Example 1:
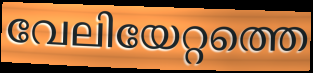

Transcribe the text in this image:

വേലിയേറ്റത്തെ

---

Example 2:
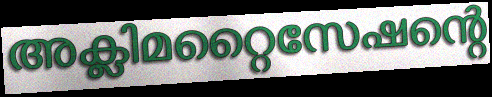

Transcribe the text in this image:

അക്ലിമറ്റൈസേഷന്റെ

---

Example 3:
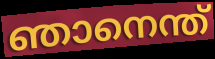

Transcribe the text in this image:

ഞാനെന്ത്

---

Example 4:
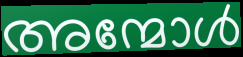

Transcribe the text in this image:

അന്മോൾ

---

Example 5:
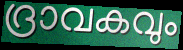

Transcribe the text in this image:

ദ്രാവകവും